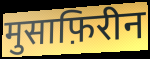
मुसाफ़िरीन